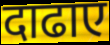
दाढाए